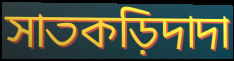
সাতকড়িদাদা